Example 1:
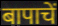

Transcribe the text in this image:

बापाचें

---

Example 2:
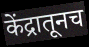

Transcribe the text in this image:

केंद्रातूनच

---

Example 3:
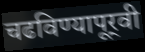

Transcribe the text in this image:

चढविण्यापूर्वी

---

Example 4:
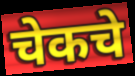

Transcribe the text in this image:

चेकचे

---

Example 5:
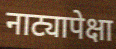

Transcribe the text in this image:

नाट्यापेक्षा